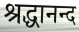
श्रद्धानन्द